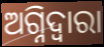
ଅଗ୍ନିଦ୍ଵାରା